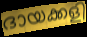
ദായക്കളി